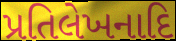
પ્રતિલેખનાદિ